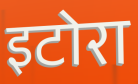
इटोरा